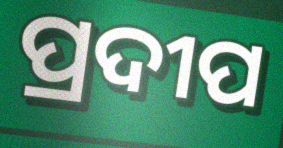
ପ୍ରଦୀପ